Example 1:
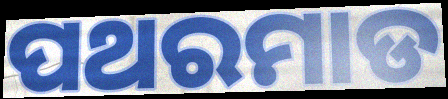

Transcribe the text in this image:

ପଥରମାଡ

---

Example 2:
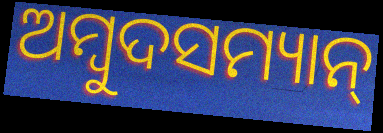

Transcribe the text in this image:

ଅମ୍ୱୁଦସମ୍ୟାନ୍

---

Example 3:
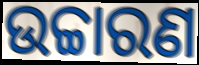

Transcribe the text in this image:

ଉଚ୍ଚାରଣ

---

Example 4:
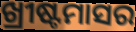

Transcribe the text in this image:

ଖ୍ରୀଷ୍ଟମାସର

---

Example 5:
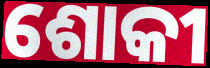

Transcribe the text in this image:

ଶୋକୀ